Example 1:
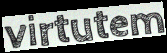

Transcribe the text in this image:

virtutem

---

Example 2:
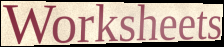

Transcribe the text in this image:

Worksheets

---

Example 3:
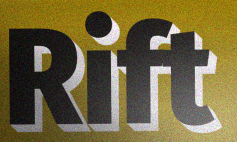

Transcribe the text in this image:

Rift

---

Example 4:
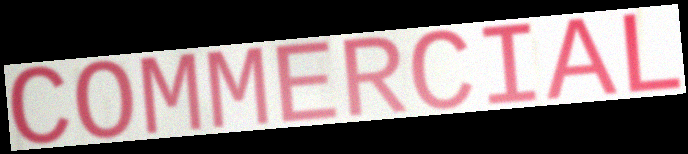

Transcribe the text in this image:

COMMERCIAL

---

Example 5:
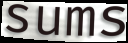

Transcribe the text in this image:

sums